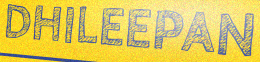
DHILEEPAN